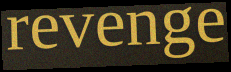
revenge